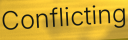
Conflicting